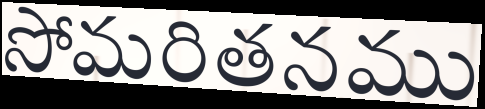
సోమరితనము